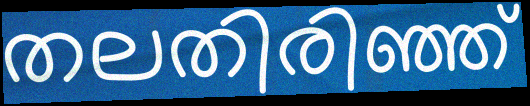
തലതിരിഞ്ഞ്